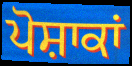
ਪੋਸ਼ਾਕਾਂ